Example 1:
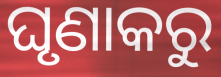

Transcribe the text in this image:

ଘୃଣାକରୁ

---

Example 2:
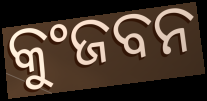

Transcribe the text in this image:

କୁଂଜବନ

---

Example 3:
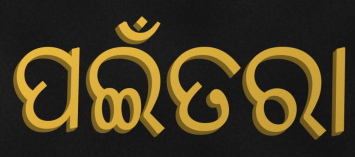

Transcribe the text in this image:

ପଇଁତରା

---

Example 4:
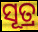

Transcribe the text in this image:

ସୂତ୍ର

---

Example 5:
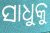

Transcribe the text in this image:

ସାଧୁକୁ